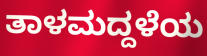
ತಾಳಮದ್ದಳೆಯ